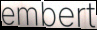
embert